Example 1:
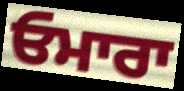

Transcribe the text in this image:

ਓਮਾਰਾ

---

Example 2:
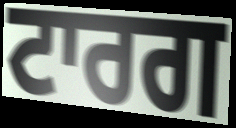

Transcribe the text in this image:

ਟਾਰਗ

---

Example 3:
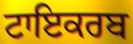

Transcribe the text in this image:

ਟਾਇਕਰਬ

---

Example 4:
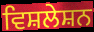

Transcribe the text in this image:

ਵਿਸ਼ਲੇਸ਼ਨ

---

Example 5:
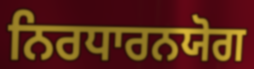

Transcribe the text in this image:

ਨਿਰਧਾਰਨਯੋਗ